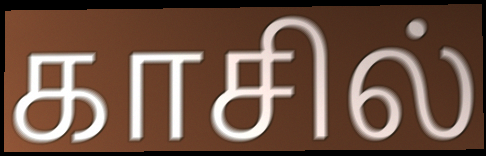
காசில்